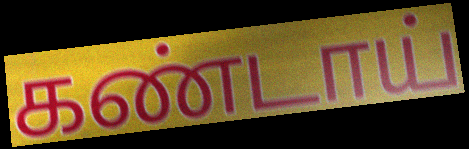
கண்டாய்